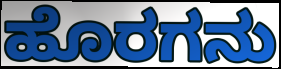
ಹೊರಗನು